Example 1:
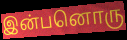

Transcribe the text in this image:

இன்பனொரு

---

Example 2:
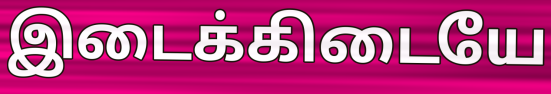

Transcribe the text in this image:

இடைக்கிடையே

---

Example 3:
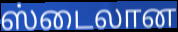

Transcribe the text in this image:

ஸ்டைலான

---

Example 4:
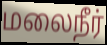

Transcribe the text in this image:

மலைநீர்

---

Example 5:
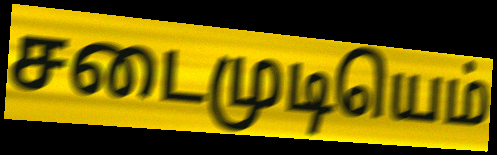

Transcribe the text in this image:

சடைமுடியெம்